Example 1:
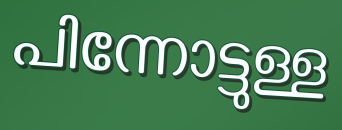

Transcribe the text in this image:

പിന്നോട്ടുള്ള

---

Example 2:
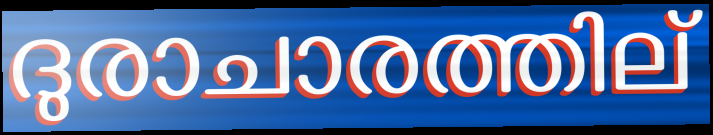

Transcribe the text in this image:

ദുരാചാരത്തില്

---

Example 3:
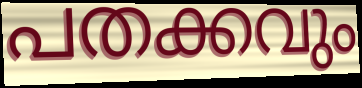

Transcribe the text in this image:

പതക്കവും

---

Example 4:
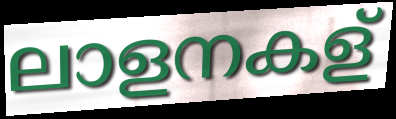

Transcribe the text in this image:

ലാളനകള്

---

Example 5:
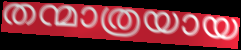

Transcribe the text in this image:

തന്മാത്രയായ